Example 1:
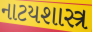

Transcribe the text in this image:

નાટયશાસ્ત્ર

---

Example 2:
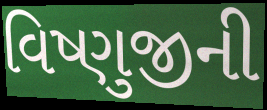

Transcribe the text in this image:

વિષ્ણુજીની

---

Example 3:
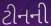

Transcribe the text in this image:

ટીનની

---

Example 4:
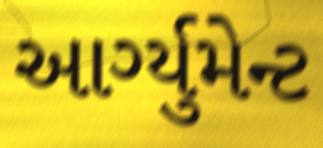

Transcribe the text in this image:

આર્ગ્યુમેન્ટ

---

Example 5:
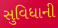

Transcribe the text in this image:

સુવિધાની